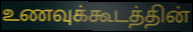
உணவுக்கூடத்தின்